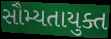
સૌમ્યતાયુક્ત